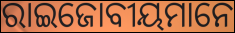
ରାଇଜୋବୀୟମାନେ